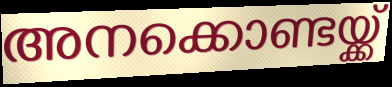
അനക്കൊണ്ടയ്ക്ക്